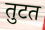
तुटत